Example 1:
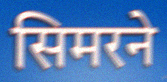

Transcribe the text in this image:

सिमरने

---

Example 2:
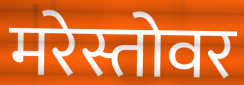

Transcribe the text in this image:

मरेस्तोवर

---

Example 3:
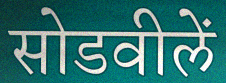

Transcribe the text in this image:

सोडवीलें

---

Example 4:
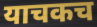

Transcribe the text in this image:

याचकच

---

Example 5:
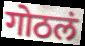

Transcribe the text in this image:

गोठलं